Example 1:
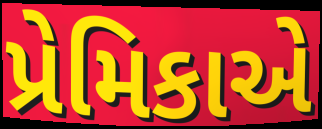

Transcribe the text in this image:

પ્રેમિકાએ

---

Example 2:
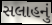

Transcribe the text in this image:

સલાહનું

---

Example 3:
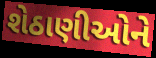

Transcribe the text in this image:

શેઠાણીઓને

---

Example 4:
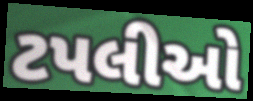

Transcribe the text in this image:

ટપલીઓ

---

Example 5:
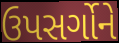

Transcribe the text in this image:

ઉપસર્ગોને